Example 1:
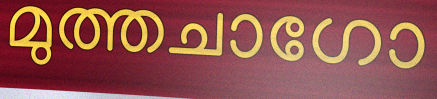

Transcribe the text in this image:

മുത്തചാഗോ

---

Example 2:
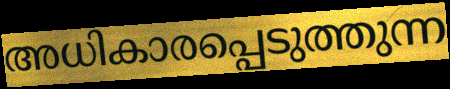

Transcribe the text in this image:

അധികാരപ്പെടുത്തുന്ന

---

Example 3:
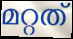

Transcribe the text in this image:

മറ്റത്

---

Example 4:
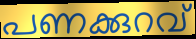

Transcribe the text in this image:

പണക്കുറവ്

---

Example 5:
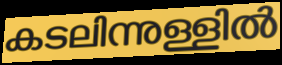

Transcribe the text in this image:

കടലിന്നുള്ളിൽ